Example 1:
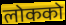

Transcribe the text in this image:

लोकको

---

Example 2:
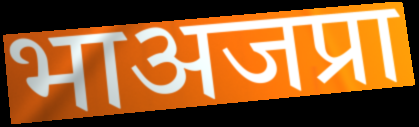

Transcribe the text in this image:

भाअजप्रा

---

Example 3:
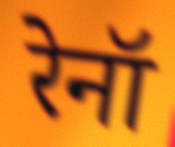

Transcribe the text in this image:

रेनॉ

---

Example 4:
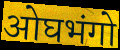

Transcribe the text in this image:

ओघभंगो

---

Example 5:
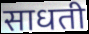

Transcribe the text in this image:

साधती